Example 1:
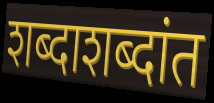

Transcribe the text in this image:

शब्दाशब्दांत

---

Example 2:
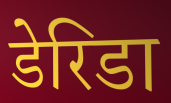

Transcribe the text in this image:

डेरिडा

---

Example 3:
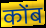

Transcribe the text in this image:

कोंब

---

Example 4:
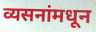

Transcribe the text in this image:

व्यसनांमधून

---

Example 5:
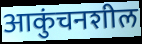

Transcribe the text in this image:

आकुंचनशील